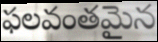
ఫలవంతమైన